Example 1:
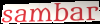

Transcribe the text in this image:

sambar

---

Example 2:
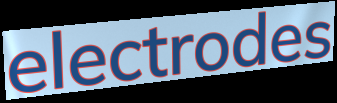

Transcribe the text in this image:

electrodes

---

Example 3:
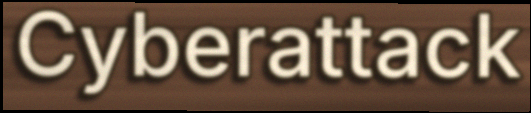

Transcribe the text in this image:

Cyberattack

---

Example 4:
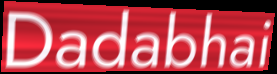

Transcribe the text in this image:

Dadabhai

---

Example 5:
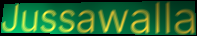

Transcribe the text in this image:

Jussawalla